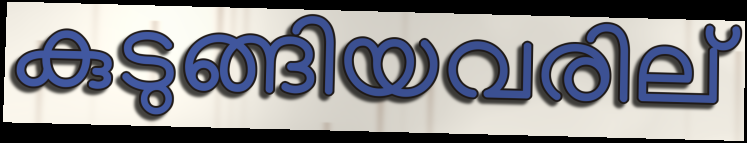
കുടുങ്ങിയവരില്